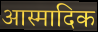
आस्मादिक